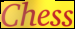
Chess